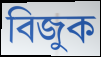
বিজুক